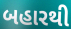
બહારથી